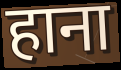
हाना